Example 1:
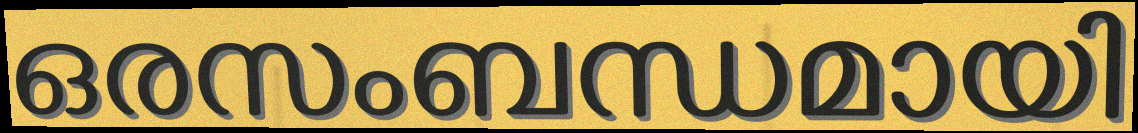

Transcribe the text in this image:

ഒരസംബന്ധമായി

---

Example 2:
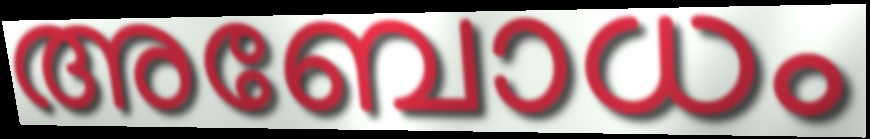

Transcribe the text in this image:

അബോധം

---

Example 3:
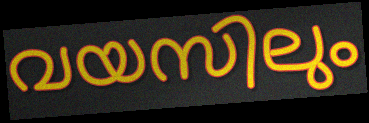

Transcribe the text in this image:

വയസിലും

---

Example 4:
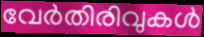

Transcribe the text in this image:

വേർതിരിവുകൾ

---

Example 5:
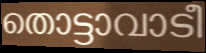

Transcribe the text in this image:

തൊട്ടാവാടീ